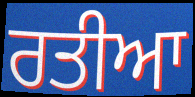
ਰਤੀਆ